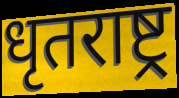
धृतराष्ट्र